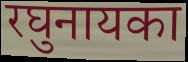
रघुनायका